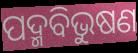
ପଦ୍ମବିଭୁଷଣ